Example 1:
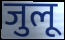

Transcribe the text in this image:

जुलू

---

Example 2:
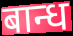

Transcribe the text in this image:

बान्ध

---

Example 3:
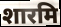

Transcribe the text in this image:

शारमि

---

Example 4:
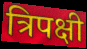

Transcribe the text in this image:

त्रिपक्षी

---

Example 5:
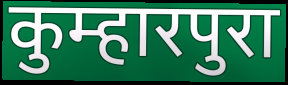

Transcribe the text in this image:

कुम्हारपुरा